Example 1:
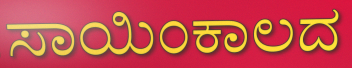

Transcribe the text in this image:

ಸಾಯಿಂಕಾಲದ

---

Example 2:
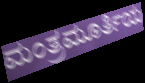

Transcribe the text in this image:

ಮಂತ್ರಮೂರ್ತಿಯ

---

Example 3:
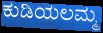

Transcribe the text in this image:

ಕುಡಿಯಲಮ್ಮ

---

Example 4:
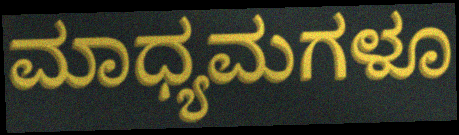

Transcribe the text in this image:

ಮಾಧ್ಯಮಗಳೂ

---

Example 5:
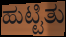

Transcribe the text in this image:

ಹುಟ್ಟಿತು